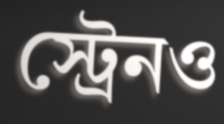
স্ট্রেনও